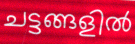
ചട്ടങ്ങളിൽ